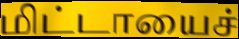
மிட்டாயைச்